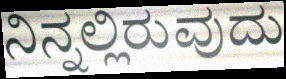
ನಿನ್ನಲ್ಲಿರುವುದು